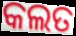
କଲତ